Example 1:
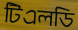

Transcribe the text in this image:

টিএলডি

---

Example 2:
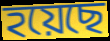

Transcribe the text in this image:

হয়েছে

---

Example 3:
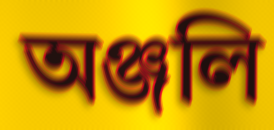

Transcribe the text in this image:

অঞ্জলি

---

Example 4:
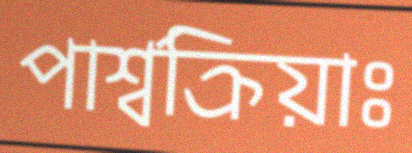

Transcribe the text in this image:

পাৰ্শ্বক্ৰিয়াঃ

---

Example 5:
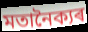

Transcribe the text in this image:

মতানৈক্যৰ